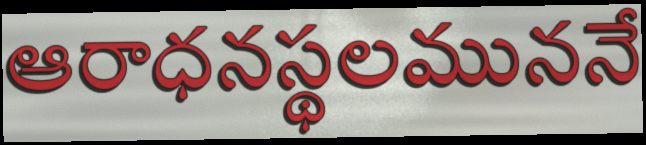
ఆరాధనస్థలముననే